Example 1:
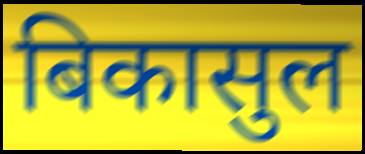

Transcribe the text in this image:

बिकासुल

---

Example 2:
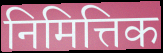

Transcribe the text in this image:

निमित्तिक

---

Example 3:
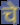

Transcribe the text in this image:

चे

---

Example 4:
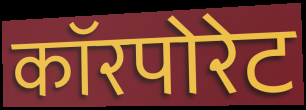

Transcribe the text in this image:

कॉरपोरेट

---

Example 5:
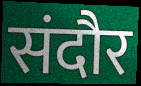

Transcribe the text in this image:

संदौर